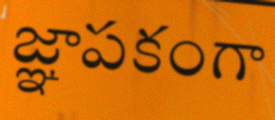
జ్ఞాపకంగా